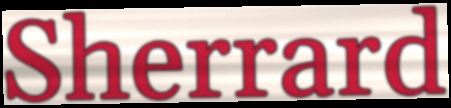
Sherrard